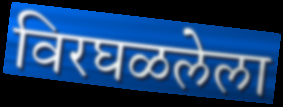
विरघळलेला